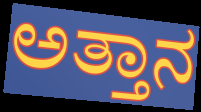
ಅತ್ತಾನ